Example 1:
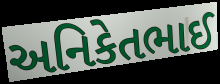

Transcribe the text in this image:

અનિકેતભાઈ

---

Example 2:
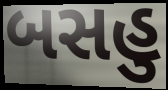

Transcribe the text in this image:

બસહુ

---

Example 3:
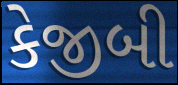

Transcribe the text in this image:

કેજીબી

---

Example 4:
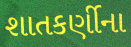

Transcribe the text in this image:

શાતકર્ણીના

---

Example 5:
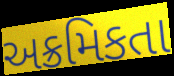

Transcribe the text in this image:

અક્રમિકતા